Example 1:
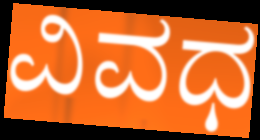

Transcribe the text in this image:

ವಿವಧ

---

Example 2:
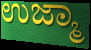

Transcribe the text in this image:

ಉಜ್ಮಾ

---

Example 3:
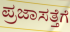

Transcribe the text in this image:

ಪ್ರಜಾಸತ್ತೆಗೆ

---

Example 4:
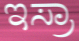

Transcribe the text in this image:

ಇಸ್ರಾ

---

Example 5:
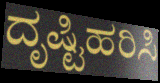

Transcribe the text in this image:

ದೃಷ್ಟಿಹರಿಸಿ